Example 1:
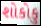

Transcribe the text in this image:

શોકોકુ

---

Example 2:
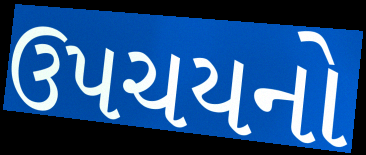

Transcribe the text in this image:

ઉપચયનો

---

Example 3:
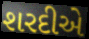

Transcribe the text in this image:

શરદીએ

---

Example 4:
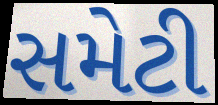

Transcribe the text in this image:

સમેટી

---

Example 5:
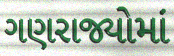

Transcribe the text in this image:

ગણરાજ્યોમાં